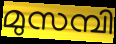
മുസമ്പി